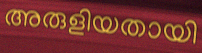
അരുളിയതായി